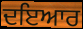
ਦਇਆਰ